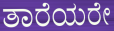
ತಾರೆಯರೇ